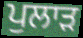
ਪੁਲਾੜ